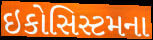
ઇકોસિસ્ટમના